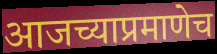
आजच्याप्रमाणेच